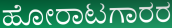
ಹೋರಾಟಗಾರರ